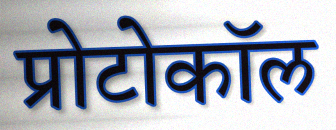
प्रोटोकॉल